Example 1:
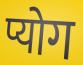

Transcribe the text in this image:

प्योग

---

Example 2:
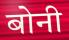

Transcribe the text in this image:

बोनी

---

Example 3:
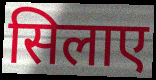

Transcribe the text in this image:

सिलाए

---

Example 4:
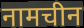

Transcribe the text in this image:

नामचीन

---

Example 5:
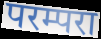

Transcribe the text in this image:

परम्परा